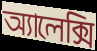
অ্যালেক্সি